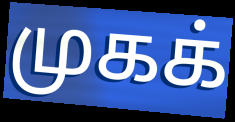
முகக்